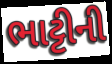
ભાટ્ટીની